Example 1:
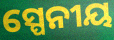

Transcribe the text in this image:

ସ୍ପେନୀୟ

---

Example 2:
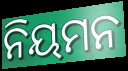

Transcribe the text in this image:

ନିୟମନ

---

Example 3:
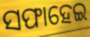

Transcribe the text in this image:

ସଫାହେଇ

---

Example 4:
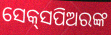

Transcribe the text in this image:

ସେକ୍‌ସପିଅରଙ୍କ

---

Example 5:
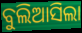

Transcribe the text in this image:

ବୁଲିଆସିଲା